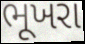
ભૂખરા